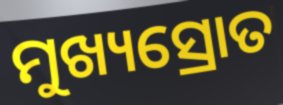
ମୁଖ୍ୟସ୍ରୋତ